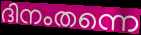
ദിനംതന്നെ